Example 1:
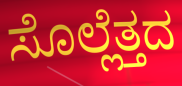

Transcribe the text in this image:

ಸೊಲ್ಲೆತ್ತದ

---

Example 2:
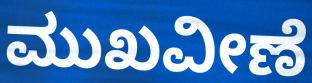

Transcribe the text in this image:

ಮುಖವೀಣೆ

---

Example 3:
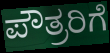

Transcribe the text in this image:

ಪೌತ್ರರಿಗೆ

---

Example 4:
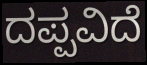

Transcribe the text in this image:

ದಪ್ಪವಿದೆ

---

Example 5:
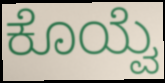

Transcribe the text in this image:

ಕೊಯ್ವೆ